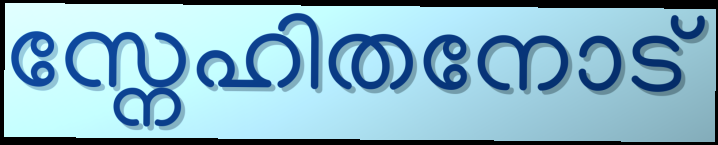
സ്നേഹിതനോട്